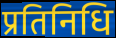
प्रतिनिधि